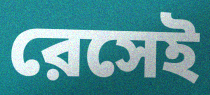
রেসেই